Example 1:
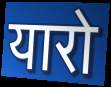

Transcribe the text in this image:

यारो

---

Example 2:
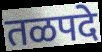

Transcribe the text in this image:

तळपदे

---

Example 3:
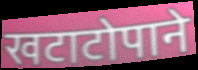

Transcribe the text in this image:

खटाटोपाने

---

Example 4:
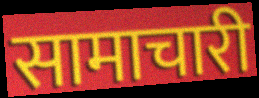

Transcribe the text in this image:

सामाचारी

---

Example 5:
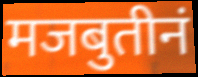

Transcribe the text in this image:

मजबुतीनं